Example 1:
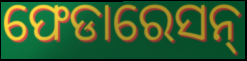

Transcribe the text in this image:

ଫେଡାରେସନ୍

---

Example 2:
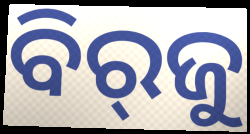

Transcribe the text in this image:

ବିର୍‌ଜୁ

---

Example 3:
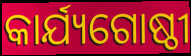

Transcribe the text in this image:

କାର୍ଯ୍ୟଗୋଷ୍ଠୀ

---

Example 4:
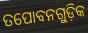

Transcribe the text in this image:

ତପୋବନଗୁଡ଼ିକ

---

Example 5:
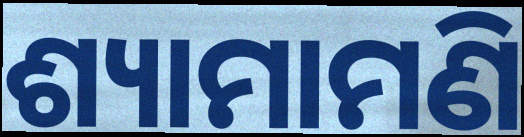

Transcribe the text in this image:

ଶ୍ୟାମାମଣି